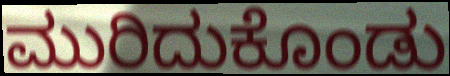
ಮುರಿದುಕೊಂಡು